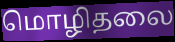
மொழிதலை